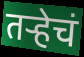
तर्‍हेचं